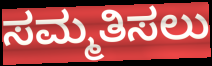
ಸಮ್ಮತಿಸಲು